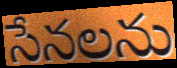
సేనలను